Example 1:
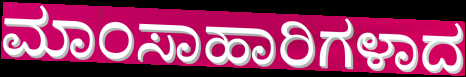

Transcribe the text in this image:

ಮಾಂಸಾಹಾರಿಗಳಾದ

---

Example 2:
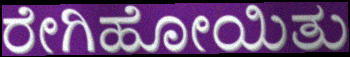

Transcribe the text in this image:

ರೇಗಿಹೋಯಿತು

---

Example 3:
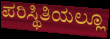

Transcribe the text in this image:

ಪರಿಸ್ಥಿತಿಯಲ್ಲೂ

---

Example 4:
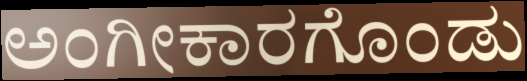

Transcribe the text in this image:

ಅಂಗೀಕಾರಗೊಂಡು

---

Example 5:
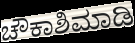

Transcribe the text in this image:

ಚೌಕಾಶಿಮಾಡಿ